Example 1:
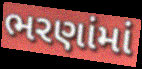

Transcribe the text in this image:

ભરણાંમાં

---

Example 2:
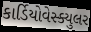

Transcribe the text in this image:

કાર્ડિયોવેસ્ક્યુલર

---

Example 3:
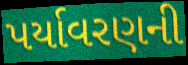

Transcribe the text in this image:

પર્યાવરણની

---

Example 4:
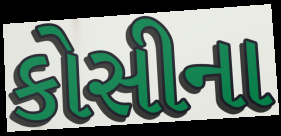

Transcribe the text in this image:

કોસીના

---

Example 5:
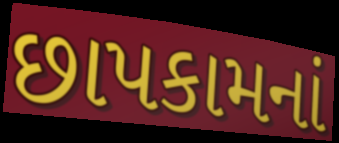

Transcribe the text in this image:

છાપકામનાં